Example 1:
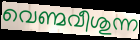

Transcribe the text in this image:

വെണ്മവീശുന്ന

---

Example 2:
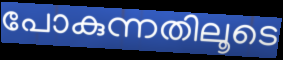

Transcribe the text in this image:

പോകുന്നതിലൂടെ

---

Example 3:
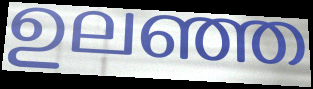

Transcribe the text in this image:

ഉലഞ്ഞ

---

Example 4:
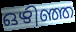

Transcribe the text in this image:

ഒഴിഞ്ഞ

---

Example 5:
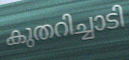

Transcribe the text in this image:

കുതറിച്ചാടി